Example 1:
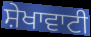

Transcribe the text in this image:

ਸ਼ੇਖਾਵਾਟੀ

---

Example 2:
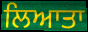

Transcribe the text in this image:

ਲਿਆਤਾ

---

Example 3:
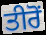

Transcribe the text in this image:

ਤੀਰੋਂ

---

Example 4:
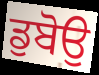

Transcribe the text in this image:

ਡੁਬੋਉ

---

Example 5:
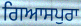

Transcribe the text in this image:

ਗਿਆਸਪੁਰਾ